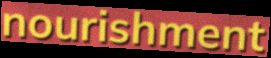
nourishment